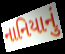
નાનિયાનું